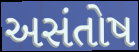
અસંતોષ